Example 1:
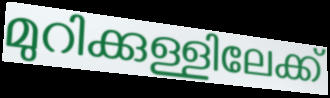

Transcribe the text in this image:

മുറിക്കുള്ളിലേക്ക്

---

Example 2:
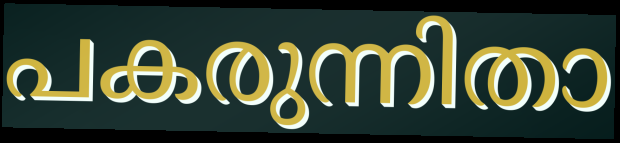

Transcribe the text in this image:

പകരുന്നിതാ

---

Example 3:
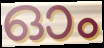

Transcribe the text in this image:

ഓം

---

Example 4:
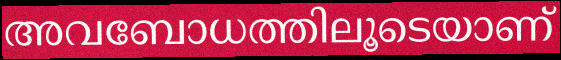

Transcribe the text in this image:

അവബോധത്തിലൂടെയാണ്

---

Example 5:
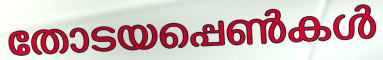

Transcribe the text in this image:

തോടയപ്പെൺകൾ